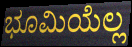
ಭೂಮಿಯೆಲ್ಲ